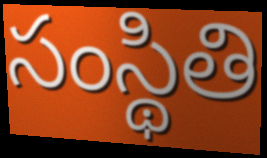
సంస్థితి